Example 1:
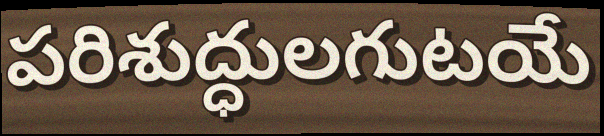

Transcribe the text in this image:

పరిశుద్ధులగుటయే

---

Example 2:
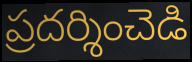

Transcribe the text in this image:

ప్రదర్శించెడి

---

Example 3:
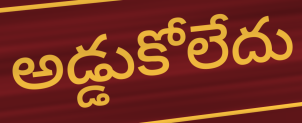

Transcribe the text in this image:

అడ్డుకోలేదు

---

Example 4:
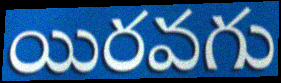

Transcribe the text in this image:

యిరవగు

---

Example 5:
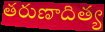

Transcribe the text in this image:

తరుణాదిత్య